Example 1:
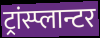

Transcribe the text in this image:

ट्रांस्प्लान्टर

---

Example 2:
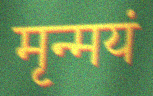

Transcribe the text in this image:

मृन्मयं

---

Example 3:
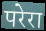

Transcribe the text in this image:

परेरा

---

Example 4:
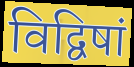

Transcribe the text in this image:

विद्विषां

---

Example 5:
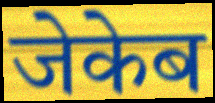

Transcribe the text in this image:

जेकेब